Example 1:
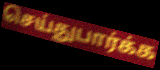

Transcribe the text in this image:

செய்துபார்க்க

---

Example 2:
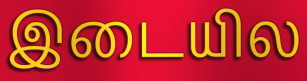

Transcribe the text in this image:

இடையில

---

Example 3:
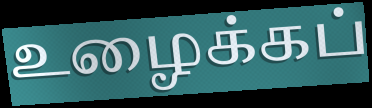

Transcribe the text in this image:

உழைக்கப்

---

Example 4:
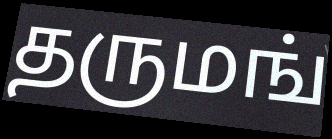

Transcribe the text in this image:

தருமங்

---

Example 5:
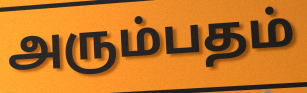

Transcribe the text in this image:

அரும்பதம்